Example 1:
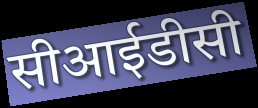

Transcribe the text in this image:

सीआईडीसी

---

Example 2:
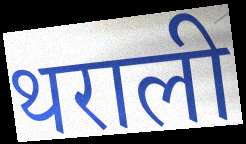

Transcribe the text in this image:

थराली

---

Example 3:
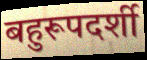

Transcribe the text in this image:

बहुरूपदर्शी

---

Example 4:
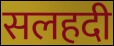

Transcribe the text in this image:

सलहदी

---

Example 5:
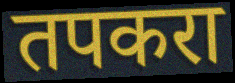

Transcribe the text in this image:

तपकरा